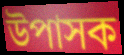
উপাসক